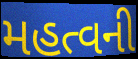
મહત્વની